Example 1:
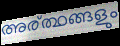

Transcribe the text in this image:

അര്ത്ഥങ്ങളും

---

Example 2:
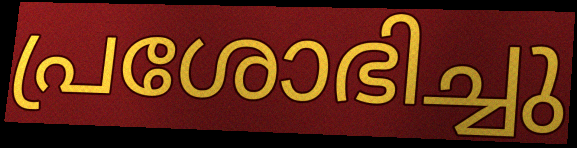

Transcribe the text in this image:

പ്രശോഭിച്ചു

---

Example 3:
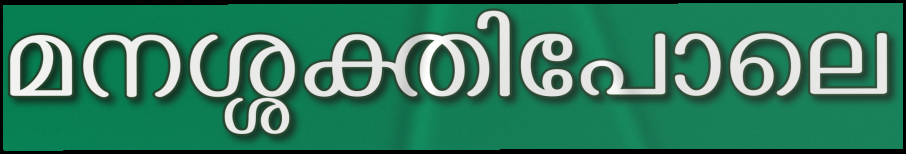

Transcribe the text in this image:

മനശ്ശക്തിപോലെ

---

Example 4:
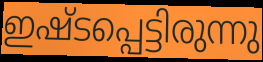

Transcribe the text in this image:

ഇഷ്ടപ്പെട്ടിരുന്നു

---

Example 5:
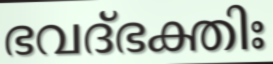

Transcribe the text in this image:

ഭവദ്ഭക്തിഃ